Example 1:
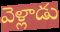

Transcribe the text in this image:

వెళ్లాడు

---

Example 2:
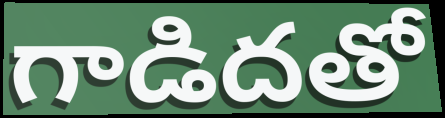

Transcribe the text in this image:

గాడిదతో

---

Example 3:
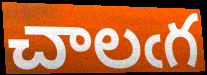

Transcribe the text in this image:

చాలఁగ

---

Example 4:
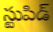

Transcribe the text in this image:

స్టుపిడ్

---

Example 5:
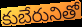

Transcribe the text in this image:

కుబేరునితో